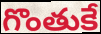
గొంతుకే